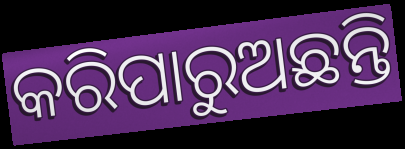
କରିପାରୁଅଛନ୍ତି